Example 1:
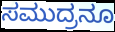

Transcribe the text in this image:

ಸಮುದ್ರನೂ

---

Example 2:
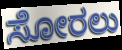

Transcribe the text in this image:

ಸೋರಲು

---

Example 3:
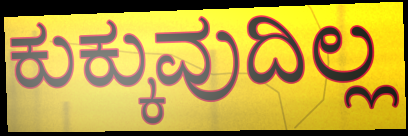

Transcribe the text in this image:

ಕುಕ್ಕುವುದಿಲ್ಲ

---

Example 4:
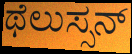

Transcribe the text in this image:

ಥೆಲುಸ್ಸನ್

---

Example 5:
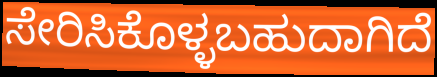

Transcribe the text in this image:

ಸೇರಿಸಿಕೊಳ್ಳಬಹುದಾಗಿದೆ